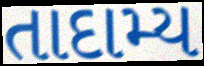
તાદામ્ય